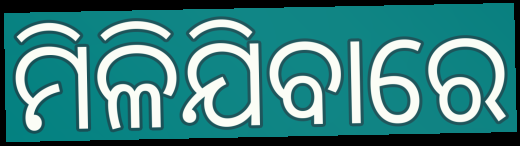
ମିଳିଯିବାରେ